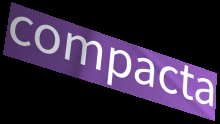
compacta